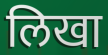
लिखा